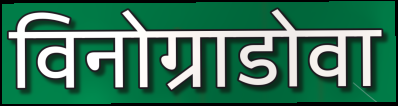
विनोग्राडोवा